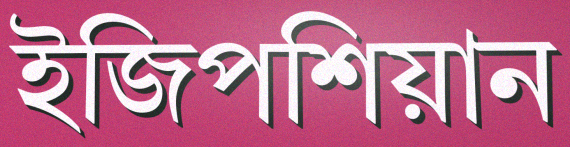
ইজিপশিয়ান